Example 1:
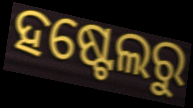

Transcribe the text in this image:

ହଷ୍ଟେଲରୁ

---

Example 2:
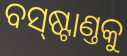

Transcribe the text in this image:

ବସ୍‌ଷ୍ଟାଣ୍ତକୁ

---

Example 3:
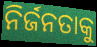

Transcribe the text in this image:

ନିର୍ଜନତାକୁ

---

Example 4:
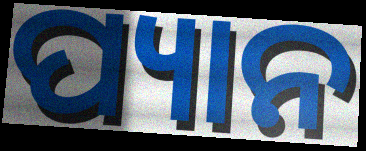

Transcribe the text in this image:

ପ୍ୟାନ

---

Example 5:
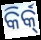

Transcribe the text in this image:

କିର୍କ୍